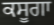
ਕਸੂਗਾ